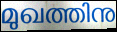
മുഖത്തിനു